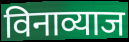
विनाव्याज